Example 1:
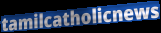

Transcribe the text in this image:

tamilcatholicnews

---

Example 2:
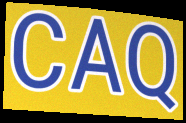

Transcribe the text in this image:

CAQ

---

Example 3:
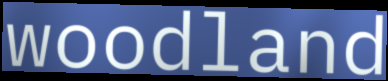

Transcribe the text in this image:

woodland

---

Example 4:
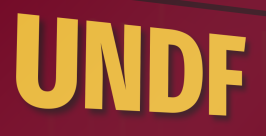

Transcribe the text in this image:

UNDF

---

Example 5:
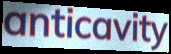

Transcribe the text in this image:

anticavity